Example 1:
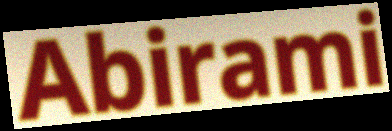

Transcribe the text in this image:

Abirami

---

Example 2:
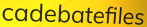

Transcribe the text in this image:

cadebatefiles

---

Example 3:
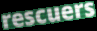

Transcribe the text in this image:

rescuers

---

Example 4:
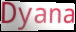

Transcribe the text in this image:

Dyana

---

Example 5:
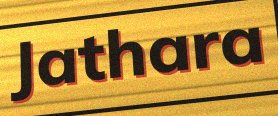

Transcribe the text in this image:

Jathara